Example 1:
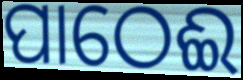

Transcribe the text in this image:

ପାଠେଈ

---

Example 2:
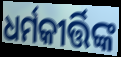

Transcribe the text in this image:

ଧର୍ମକୀର୍ତ୍ତିଙ୍କ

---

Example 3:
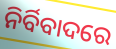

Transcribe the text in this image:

ନିର୍ବିବାଦରେ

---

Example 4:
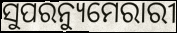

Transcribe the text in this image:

ସୁପରନ୍ୟୁମେରାରୀ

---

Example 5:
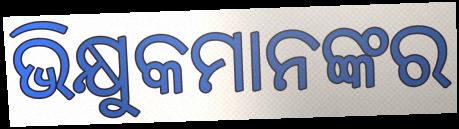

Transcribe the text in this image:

ଭିକ୍ଷୁକମାନଙ୍କର